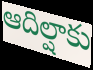
ఆదిల్షాకు